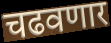
चढवणार